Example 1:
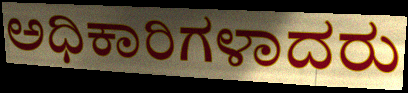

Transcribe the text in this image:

ಅಧಿಕಾರಿಗಳಾದರು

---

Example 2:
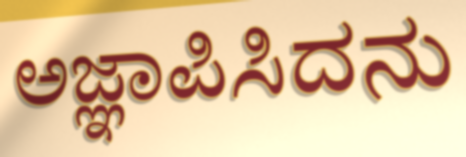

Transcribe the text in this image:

ಅಜ್ಞಾಪಿಸಿದನು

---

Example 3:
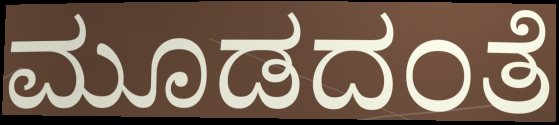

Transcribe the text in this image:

ಮೂಡದಂತೆ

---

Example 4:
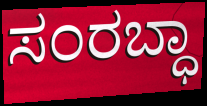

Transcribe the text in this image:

ಸಂರಬ್ಧಾ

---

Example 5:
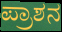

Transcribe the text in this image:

ಪ್ರಾಶನ